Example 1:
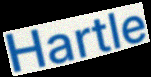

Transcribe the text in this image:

Hartle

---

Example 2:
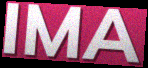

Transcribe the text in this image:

IMA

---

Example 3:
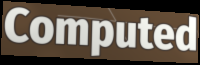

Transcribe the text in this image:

Computed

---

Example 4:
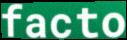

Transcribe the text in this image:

facto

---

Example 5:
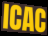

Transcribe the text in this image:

ICAC